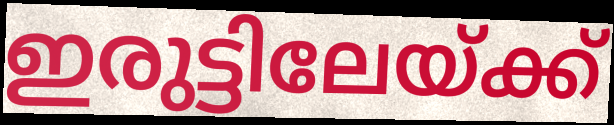
ഇരുട്ടിലേയ്ക്ക്